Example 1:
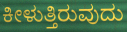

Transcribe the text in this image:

ಕೀಳುತ್ತಿರುವುದು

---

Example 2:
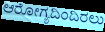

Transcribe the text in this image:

ಆರೋಗ್ಯದಿಂದಿರಲು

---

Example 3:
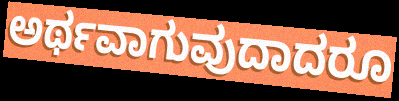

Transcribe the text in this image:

ಅರ್ಥವಾಗುವುದಾದರೂ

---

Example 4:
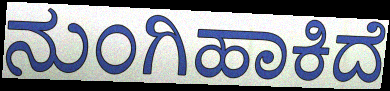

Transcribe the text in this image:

ನುಂಗಿಹಾಕಿದೆ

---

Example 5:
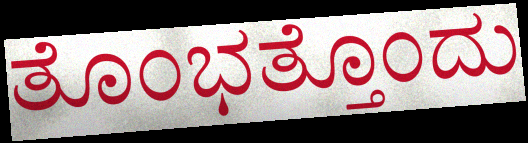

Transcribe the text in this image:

ತೊಂಭತ್ತೊಂದು